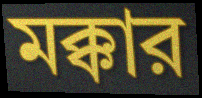
মক্কার